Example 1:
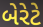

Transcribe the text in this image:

બેરેટે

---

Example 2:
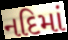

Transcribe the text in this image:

નદિમાં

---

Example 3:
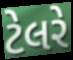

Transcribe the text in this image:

ટેલરે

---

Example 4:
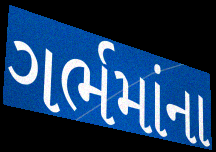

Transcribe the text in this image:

ગર્ભમાંના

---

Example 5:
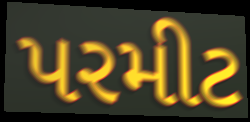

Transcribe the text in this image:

પરમીટ